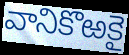
వానికొఱకై